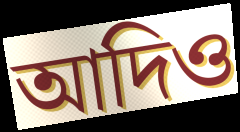
আদিও